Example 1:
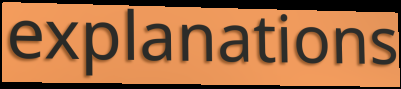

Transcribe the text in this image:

explanations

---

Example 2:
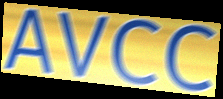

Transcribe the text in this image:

AVCC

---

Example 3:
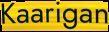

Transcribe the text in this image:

Kaarigan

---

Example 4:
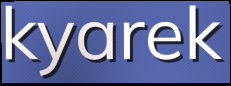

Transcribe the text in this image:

kyarek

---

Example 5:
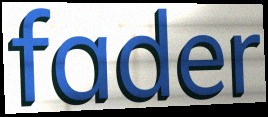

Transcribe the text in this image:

fader